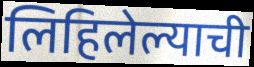
लिहिलेल्याची